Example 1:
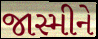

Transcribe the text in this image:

જાસ્મીને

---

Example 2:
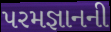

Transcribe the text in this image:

પરમજ્ઞાનની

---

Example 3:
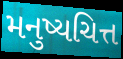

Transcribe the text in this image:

મનુષ્યચિત્ત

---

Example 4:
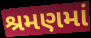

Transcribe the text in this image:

શ્રમણમાં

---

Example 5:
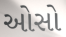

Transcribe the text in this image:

ઓસો